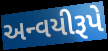
અન્વયીરૂપે